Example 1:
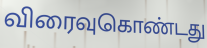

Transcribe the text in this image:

விரைவுகொண்டது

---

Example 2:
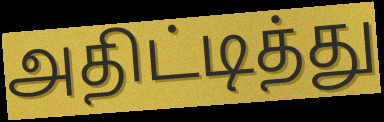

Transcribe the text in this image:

அதிட்டித்து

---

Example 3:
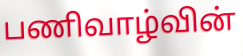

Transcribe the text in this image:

பணிவாழ்வின்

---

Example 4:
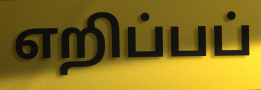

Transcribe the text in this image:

எறிப்பப்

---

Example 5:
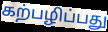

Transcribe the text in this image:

கற்பழிப்பது